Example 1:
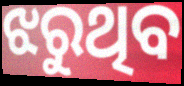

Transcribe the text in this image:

ଝରୁଥିବ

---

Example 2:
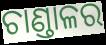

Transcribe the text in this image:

ଚାଣ୍ଡାଳର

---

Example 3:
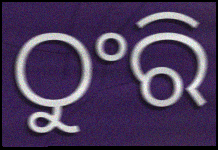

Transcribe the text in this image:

ଠୁଂରି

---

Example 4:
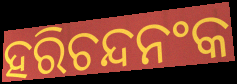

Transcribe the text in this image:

ହରିଚନ୍ଦନଂକ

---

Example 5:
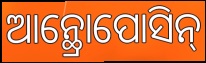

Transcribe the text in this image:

ଆନ୍ଥ୍ରୋପୋସିନ୍